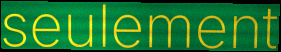
seulement